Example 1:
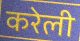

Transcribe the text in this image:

करेली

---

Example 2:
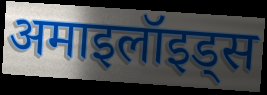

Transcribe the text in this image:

अमाइलॉइड्स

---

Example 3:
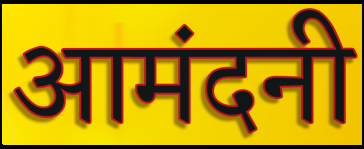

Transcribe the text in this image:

आमंदनी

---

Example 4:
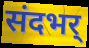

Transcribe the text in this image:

संदभर्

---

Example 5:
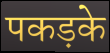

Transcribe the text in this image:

पकड़के